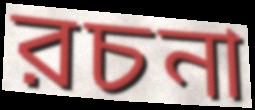
রচনা